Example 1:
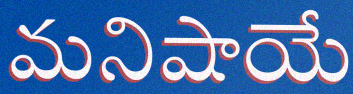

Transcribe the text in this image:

మనిషాయే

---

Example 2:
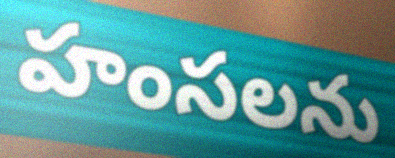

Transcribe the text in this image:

హంసలను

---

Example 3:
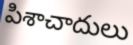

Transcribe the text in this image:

పిశాచాదులు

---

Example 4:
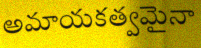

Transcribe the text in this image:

అమాయకత్వమైనా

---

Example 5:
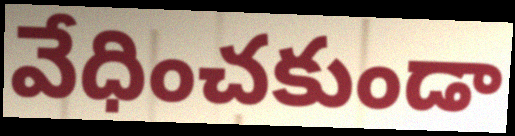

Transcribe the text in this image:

వేధించకుండా